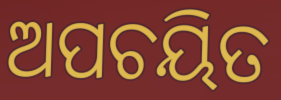
ଅପଚୟିତ